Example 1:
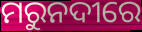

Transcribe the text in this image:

ମରୁନଦୀରେ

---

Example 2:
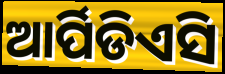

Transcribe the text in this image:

ଆର୍ପିଡିଏସି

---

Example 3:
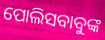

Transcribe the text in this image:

ପୋଲିସବାବୁଙ୍କ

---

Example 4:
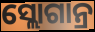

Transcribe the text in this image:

ସ୍ଲୋଗାନ୍ର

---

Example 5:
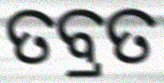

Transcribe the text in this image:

ତବ୍ରତ